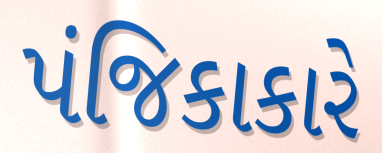
પંજિકાકારે